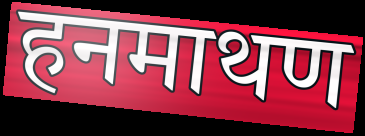
हनमाथण